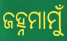
ଜହ୍ନମାମୁଁ